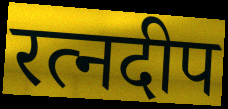
रत्नदीप